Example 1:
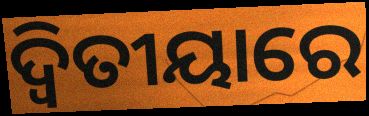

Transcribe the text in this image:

ଦ୍ୱିତୀୟାରେ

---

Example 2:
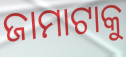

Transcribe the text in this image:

ଜାମାଟାକୁ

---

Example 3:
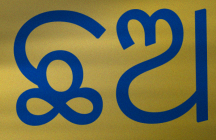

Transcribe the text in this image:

ଛଅ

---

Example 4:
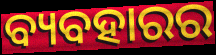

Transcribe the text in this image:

ବ୍ୟବହାରର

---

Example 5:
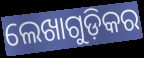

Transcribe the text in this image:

ଲେଖାଗୁଡ଼ିକର